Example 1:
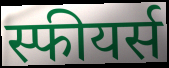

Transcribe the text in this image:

स्फीयर्स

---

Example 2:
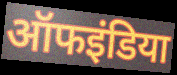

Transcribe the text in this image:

ऑफइंडिया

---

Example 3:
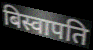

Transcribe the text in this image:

बिस्वापति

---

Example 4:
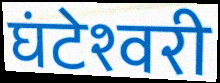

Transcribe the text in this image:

घंटेश्वरी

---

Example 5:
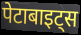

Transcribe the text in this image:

पेटाबाइट्स